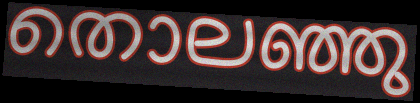
തൊലഞ്ഞു